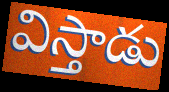
విస్తాడు